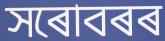
সৰোবৰৰ